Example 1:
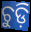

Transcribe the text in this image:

ଚୁଡ଼ି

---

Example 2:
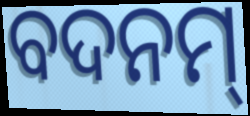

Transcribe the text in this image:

ବଦନମ୍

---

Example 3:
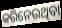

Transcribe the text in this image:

କରିନେଉଥିବା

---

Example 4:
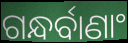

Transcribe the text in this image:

ଗନ୍ଧର୍ବାଣାଂ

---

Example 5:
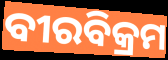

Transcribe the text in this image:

ବୀରବିକ୍ରମ